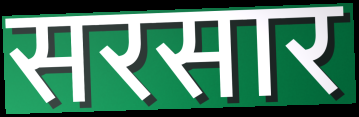
सरसार